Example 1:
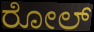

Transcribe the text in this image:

ರೋಲ್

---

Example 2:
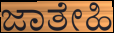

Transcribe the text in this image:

ಜಾತೇಹಿ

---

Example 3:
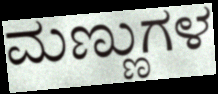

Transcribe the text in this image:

ಮಣ್ಣುಗಳ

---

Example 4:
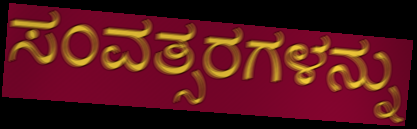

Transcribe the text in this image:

ಸಂವತ್ಸರಗಳನ್ನು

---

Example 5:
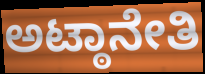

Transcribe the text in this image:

ಅಟ್ಠಾನೇತಿ